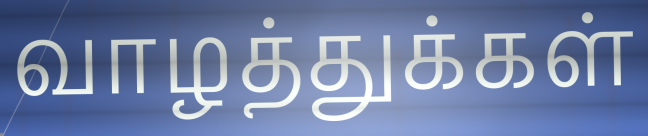
வாழத்துக்கள்